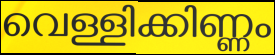
വെള്ളിക്കിണ്ണം